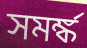
সমর্ঙ্ক